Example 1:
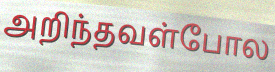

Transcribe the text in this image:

அறிந்தவள்போல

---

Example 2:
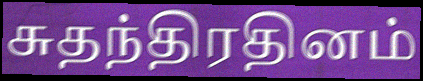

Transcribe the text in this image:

சுதந்திரதினம்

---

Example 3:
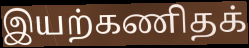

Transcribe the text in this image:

இயற்கணிதக்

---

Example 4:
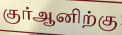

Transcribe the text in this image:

குர்ஆனிற்கு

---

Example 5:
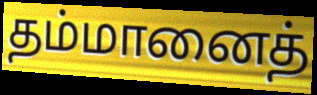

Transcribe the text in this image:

தம்மானைத்